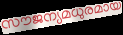
സൗജന്യമധുരമായ